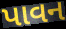
પાવન